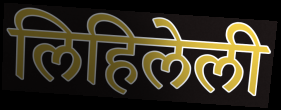
लिहिलेली